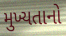
મુખ્યતાનો